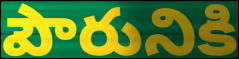
పౌరునికి